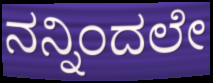
ನನ್ನಿಂದಲೇ